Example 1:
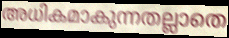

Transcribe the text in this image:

അധികമാകുന്നതല്ലാതെ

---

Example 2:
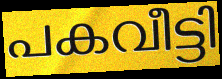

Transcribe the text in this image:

പകവീട്ടി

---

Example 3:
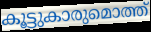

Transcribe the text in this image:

കൂട്ടുകാരുമൊത്ത്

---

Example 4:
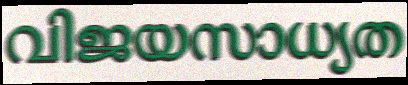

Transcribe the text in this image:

വിജയസാധ്യത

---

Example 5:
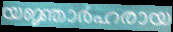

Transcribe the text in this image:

യജ്ഞാർഹരായ